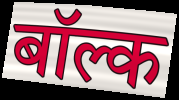
बॉल्क